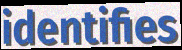
identifies